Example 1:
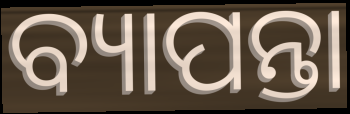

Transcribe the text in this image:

ବ୍ୟାପନ୍ତା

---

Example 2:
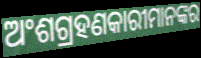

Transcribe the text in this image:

ଅଂଶଗ୍ରହଣକାରୀମାନଙ୍କର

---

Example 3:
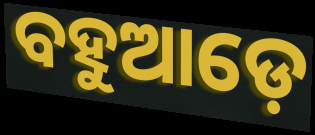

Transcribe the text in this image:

ବହୁଆଡ଼େ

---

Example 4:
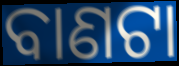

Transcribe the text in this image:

ବାଣଟା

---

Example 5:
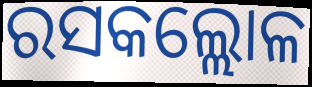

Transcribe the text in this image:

ରସକଲ୍ଲୋଳ